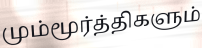
மும்மூர்த்திகளும்